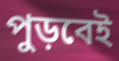
পুড়বেই